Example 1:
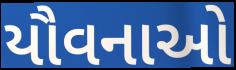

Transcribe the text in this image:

યૌવનાઓ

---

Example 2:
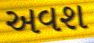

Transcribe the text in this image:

અવશ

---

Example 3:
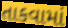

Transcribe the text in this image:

તાકવામાં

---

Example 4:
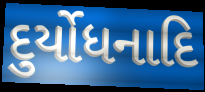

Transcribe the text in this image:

દુર્યોધનાદિ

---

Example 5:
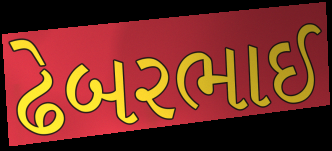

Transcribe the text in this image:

ઢેબરભાઈ